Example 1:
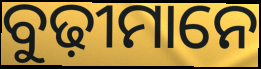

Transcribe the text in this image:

ବୁଢ଼ୀମାନେ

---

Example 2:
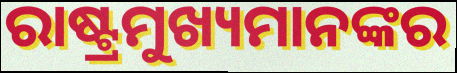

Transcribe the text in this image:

ରାଷ୍ଟ୍ରମୁଖ୍ୟମାନଙ୍କର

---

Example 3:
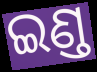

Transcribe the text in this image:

ଇଣ୍ଡ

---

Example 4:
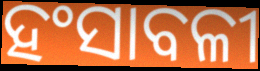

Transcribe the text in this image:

ହଂସାବଳୀ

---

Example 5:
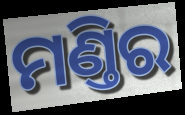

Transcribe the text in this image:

ମଣ୍ତିର